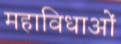
महाविधाओं